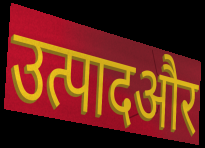
उत्पादऔर